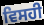
ਵਿਸਹੀ